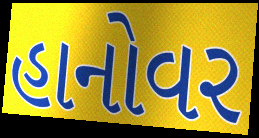
હાનોવર